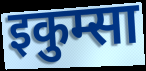
इकुम्सा